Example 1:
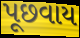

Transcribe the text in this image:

પૂછવાય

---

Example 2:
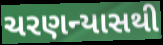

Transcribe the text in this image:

ચરણન્યાસથી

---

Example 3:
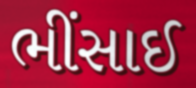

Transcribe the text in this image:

ભીંસાઈ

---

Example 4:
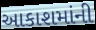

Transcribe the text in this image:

આકાશમાંની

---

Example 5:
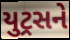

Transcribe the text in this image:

યુટ્રસને